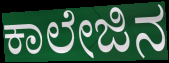
ಕಾಲೇಜಿನ